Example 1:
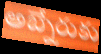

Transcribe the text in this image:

అబ్నేరుకు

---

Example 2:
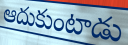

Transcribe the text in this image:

ఆదుకుంటాడు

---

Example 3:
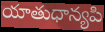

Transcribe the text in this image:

యాతుధాన్యపి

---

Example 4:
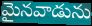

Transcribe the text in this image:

మైనవాడును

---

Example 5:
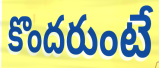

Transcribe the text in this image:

కొందరుంటే